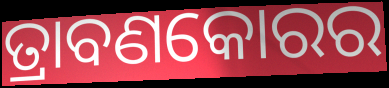
ତ୍ରାବଣକୋରର